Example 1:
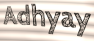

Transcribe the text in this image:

Adhyay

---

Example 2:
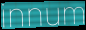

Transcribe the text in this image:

innum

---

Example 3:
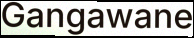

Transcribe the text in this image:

Gangawane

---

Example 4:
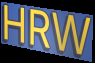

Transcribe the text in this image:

HRW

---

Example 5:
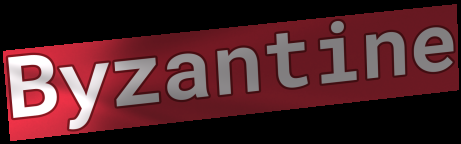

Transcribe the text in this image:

Byzantine